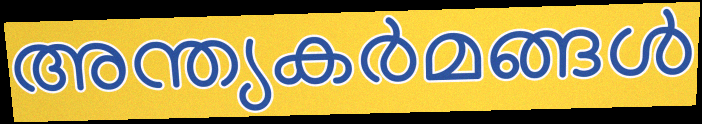
അന്ത്യകർമങ്ങൾ